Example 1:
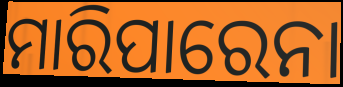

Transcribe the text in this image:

ମାରିପାରେନା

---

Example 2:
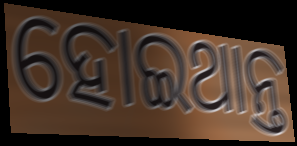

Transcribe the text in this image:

ହୋଇଥାନ୍ତ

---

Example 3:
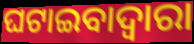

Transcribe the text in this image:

ଘଟାଇବାଦ୍ୱାରା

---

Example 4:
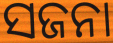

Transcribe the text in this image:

ସଜନା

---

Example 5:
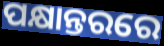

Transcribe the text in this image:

ପକ୍ଷାନ୍ତରରେ